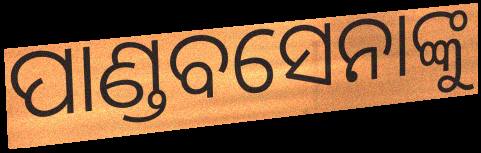
ପାଣ୍ଡବସେନାଙ୍କୁ